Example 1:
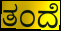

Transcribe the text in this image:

ತಂದೆ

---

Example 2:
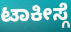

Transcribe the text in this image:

ಟಾಕೀಸ್ಗೆ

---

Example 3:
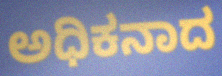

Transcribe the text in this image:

ಅಧಿಕನಾದ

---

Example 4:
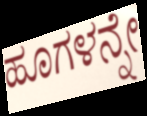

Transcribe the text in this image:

ಹೂಗಳನ್ನೇ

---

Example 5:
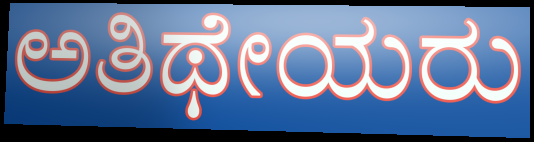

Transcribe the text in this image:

ಅತಿಥೇಯರು